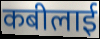
कबीलाई